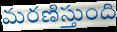
మరణిస్తుంది